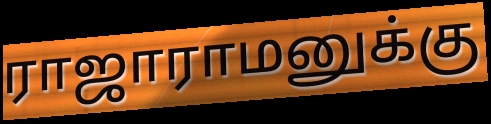
ராஜாராமனுக்கு